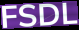
FSDL